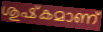
ശുഷ്‌കമാണ്